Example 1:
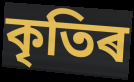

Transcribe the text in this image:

কৃতিৰ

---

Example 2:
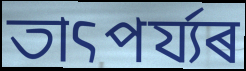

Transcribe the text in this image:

তাৎপৰ্য্যৰ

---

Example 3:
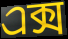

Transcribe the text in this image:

এক্স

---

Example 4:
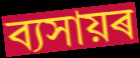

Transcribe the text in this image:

ব্যসায়ৰ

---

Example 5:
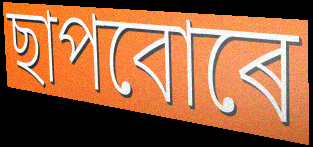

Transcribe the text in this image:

ছাপবোৰে